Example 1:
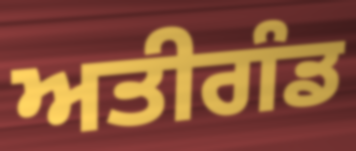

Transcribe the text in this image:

ਅਤੀਗੰਡ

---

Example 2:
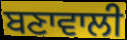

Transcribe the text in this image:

ਬਣਾਵਾਲੀ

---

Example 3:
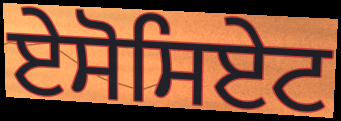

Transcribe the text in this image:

ਏਸੋਸਿਏਟ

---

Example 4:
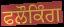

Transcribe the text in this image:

ਫਲੌਕਿੰਗ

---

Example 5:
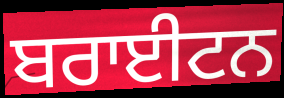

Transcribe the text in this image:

ਬਰਾਈਟਨ